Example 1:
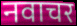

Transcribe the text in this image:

नवाचर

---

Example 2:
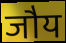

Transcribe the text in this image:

जौय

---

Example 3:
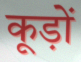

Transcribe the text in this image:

कूड़ों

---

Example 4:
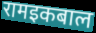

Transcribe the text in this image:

रामइकबाल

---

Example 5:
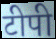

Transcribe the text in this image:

टीपी